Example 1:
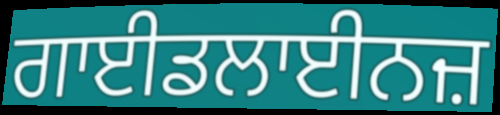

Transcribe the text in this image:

ਗਾਈਡਲਾਈਨਜ਼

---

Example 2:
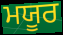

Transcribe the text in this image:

ਮਯੂਰ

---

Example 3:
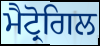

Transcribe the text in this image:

ਮੈਟ੍ਰੋਗਿਲ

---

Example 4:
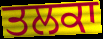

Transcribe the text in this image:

ਤਲਕਾ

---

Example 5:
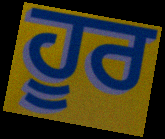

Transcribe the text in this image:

ਹੂਰ